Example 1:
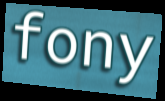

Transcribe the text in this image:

fony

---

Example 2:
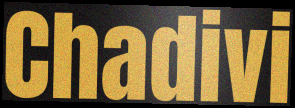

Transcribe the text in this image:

Chadivi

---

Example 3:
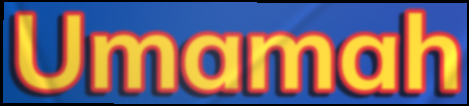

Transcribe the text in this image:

Umamah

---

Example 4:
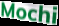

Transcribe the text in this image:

Mochi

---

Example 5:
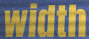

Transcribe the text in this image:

width